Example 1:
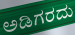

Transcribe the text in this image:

ಅಡಿಗರದು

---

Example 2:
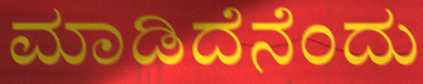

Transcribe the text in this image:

ಮಾಡಿದೆನೆಂದು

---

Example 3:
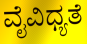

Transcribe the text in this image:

ವೈವಿಧ್ಯತೆ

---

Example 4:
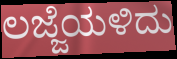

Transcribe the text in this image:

ಲಜ್ಜೆಯಳಿದು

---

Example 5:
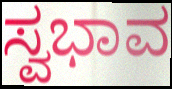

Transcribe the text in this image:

ಸ್ವಭಾವ